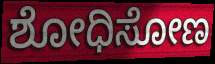
ಶೋಧಿಸೋಣ